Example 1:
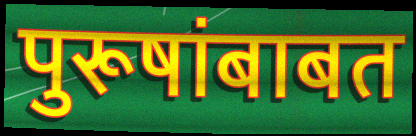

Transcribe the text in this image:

पुरूषांबाबत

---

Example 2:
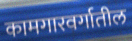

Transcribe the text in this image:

कामगारवर्गातील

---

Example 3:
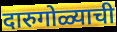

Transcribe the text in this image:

दारुगोळ्याची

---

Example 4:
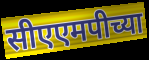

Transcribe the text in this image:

सीएएमपीच्या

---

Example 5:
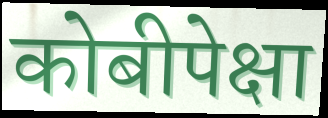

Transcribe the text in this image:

कोबीपेक्षा